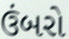
ઉંબરો